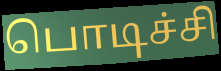
பொடிச்சி